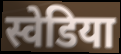
स्वेडिया